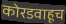
कोरडवाहूच